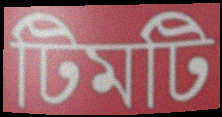
টিমটি